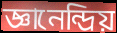
জ্ঞানেন্দ্রিয়